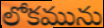
లోకమును